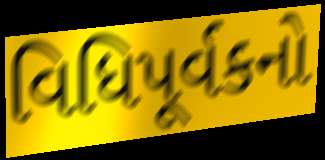
વિધિપૂર્વકનો